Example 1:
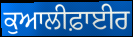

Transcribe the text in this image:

ਕੁਆਲੀਫ਼ਾਈਰ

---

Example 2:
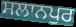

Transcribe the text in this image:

ਸਲਾਨਪੁਰ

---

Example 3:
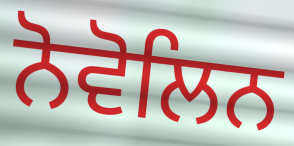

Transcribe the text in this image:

ਨੋਵੋਲਿਨ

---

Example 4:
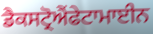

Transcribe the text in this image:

ਡੈਕਸਟ੍ਰੋਐਂਫੇਟਾਮਾਈਨ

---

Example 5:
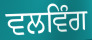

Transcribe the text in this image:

ਵਲਵਿੰਗ